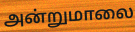
அன்றுமாலை